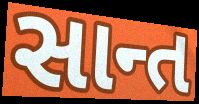
સાન્ત